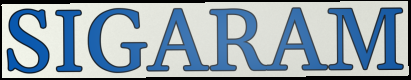
SIGARAM